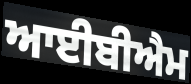
ਆਈਬੀਐਮ